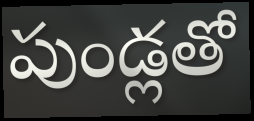
పుండ్లతో